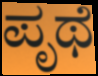
ಪೃಥೆ